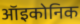
ऑइकोनिक